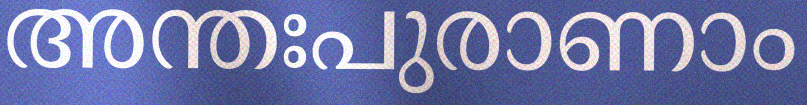
അന്തഃപുരാണാം